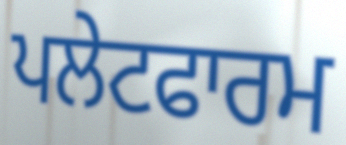
ਪਲੇਟਫਾਰਮ